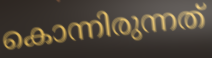
കൊന്നിരുന്നത്